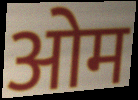
ओम